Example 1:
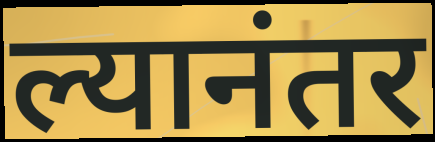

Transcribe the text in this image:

ल्यानंतर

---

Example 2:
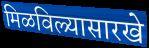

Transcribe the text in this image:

मिळविल्यासारखे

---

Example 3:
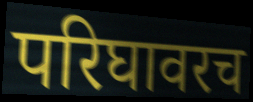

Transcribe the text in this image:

परिघावरच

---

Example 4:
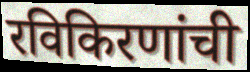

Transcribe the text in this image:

रविकिरणांची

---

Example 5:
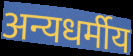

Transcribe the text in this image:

अन्यधर्मीय